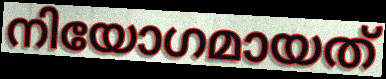
നിയോഗമായത്